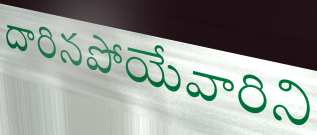
దారినపోయేవారిని